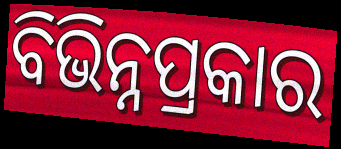
ବିଭିନ୍ନପ୍ରକାର